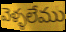
వెళ్ళలేము